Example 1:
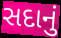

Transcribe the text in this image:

સદાનું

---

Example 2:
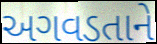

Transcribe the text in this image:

અગવડતાને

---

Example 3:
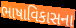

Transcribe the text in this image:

ભાષાવિકાસના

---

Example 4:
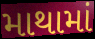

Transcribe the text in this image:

માથામાં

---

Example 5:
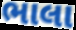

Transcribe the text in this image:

ભાલા